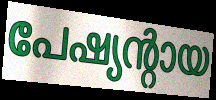
പേഷ്യന്റായ